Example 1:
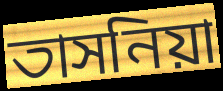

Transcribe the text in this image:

তাসনিয়া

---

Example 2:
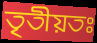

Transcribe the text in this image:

তৃতীয়তঃ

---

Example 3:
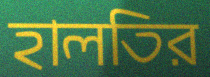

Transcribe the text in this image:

হালতির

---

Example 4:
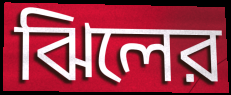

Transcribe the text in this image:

ঝিলের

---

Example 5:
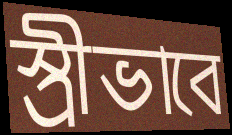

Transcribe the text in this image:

স্ত্রীভাবে